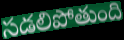
సడలిపోతుంది